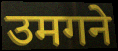
उमगने